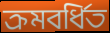
ক্রমবর্ধিত